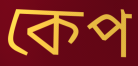
কেপ